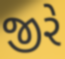
જીરે